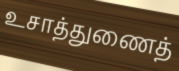
உசாத்துணைத்